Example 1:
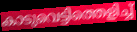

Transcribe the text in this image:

കാടുവെട്ടിത്തെളിച്ച്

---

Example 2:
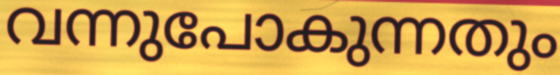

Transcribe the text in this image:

വന്നുപോകുന്നതും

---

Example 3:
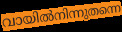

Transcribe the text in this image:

വായിൽനിന്നുതന്നെ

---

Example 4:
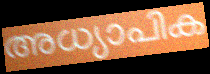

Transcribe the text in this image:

അധ്യാപിക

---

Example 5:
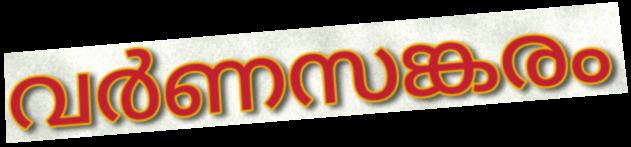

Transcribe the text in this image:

വർണസങ്കരം